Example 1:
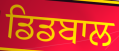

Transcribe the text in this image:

ਡਿਡਬਾਲ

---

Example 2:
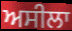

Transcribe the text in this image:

ਅਸੀਲਾ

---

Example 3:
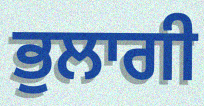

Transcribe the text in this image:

ਭੁਲਾਗੀ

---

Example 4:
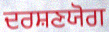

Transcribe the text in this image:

ਦਰਸ਼ਣਯੋਗ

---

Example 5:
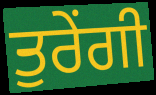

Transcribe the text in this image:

ਤੁਰੇਂਗੀ